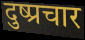
दुष्प्रचार